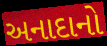
અનાદાનો